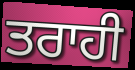
ਤਰਾਹੀ